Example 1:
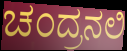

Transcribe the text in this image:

ಚಂದ್ರನಲಿ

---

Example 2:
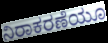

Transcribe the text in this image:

ನಿರಾಕರಣೆಯೂ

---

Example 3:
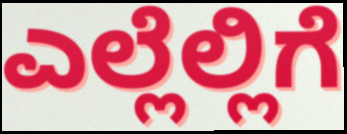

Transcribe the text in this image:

ಎಲ್ಲೆಲ್ಲಿಗೆ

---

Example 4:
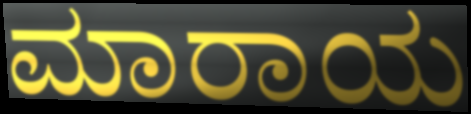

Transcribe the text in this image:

ಮಾರಾಯ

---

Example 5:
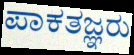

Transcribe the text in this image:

ಪಾಕತಜ್ಞರು